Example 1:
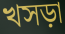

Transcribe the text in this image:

খসড়া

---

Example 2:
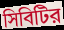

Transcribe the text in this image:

সিবিটির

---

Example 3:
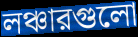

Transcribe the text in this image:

লঞ্চারগুলো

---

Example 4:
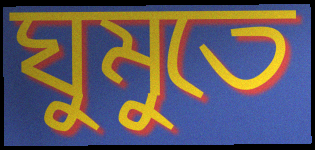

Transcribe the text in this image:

ঘুমুতে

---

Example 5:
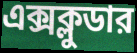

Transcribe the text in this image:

এক্সক্লুডার